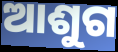
ଆଶୁଗ